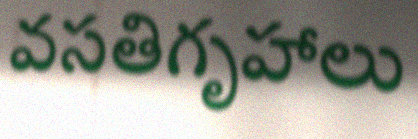
వసతిగృహాలు